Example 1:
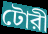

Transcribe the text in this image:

টোরী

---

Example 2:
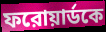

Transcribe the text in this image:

ফরোয়ার্ডকে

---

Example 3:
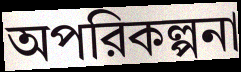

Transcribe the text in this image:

অপরিকল্পনা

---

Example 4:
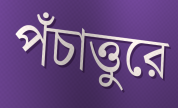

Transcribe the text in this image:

পঁচাত্তুরে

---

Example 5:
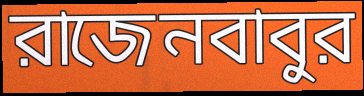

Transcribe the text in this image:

রাজেনবাবুর